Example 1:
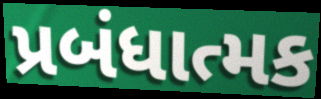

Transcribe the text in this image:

પ્રબંધાત્મક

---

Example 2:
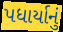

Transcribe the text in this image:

પધાર્યાનું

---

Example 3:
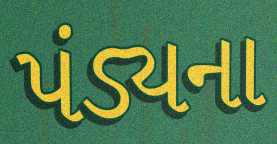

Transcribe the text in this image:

પંડ્યના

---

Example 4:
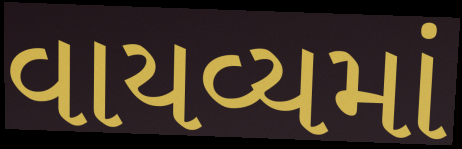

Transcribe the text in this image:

વાયવ્યમાં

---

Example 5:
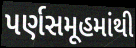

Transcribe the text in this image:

પર્ણસમૂહમાંથી